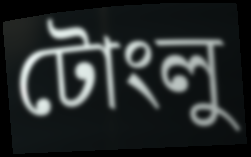
টোংলু